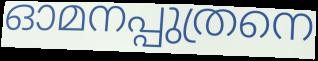
ഓമനപ്പുത്രനെ